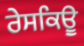
ਰੇਸਕਿਊ